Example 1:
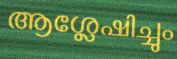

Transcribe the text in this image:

ആശ്ലേഷിച്ചും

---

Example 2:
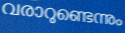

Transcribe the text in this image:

വരാറുണ്ടെന്നും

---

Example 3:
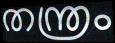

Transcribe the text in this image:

തന്ത്രം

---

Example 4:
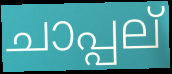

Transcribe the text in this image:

ചാപ്പല്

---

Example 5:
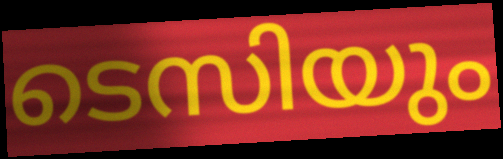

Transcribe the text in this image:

ടെസിയും